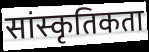
सांस्कृतिकता